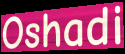
Oshadi